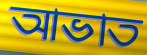
আভাত